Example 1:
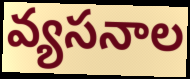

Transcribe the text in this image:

వ్యసనాల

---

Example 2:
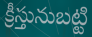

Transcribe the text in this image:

క్రీస్తునుబట్టి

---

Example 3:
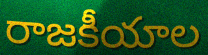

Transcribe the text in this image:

రాజకీయాల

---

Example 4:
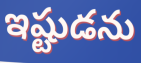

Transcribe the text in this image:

ఇష్టుడను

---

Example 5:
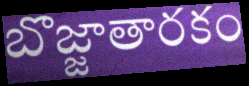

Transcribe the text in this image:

బొజ్జాతారకం